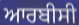
ਆਰਬੀਸੀ